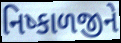
નિષ્કાળજીને